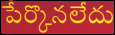
పేర్కొనలేదు